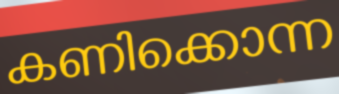
കണിക്കൊന്ന